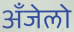
अँजेलो